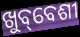
ଖୁବ୍‌ବେଶୀ